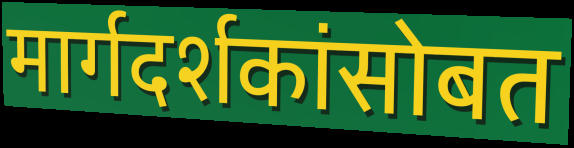
मार्गदर्शकांसोबत